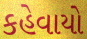
કહેવાયો